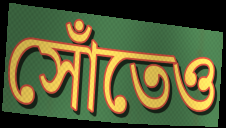
সোঁতেও